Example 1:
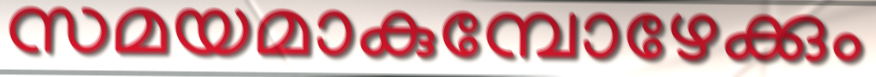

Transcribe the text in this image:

സമയമാകുമ്പോഴേക്കും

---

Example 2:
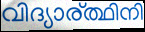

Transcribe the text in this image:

വിദ്യാര്ത്ഥിനി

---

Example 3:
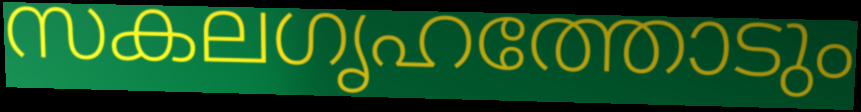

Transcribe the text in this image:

സകലഗൃഹത്തോടും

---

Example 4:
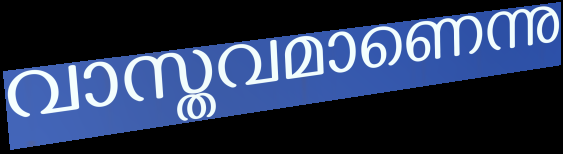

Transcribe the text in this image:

വാസ്തവമാണെന്നു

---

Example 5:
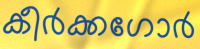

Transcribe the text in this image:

കീർക്കഗോർ